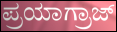
ಪ್ರಯಾಗ್ರಾಜ್